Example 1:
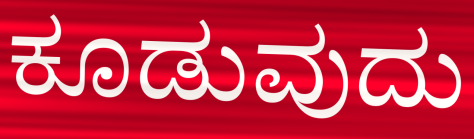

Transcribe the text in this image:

ಕೂಡುವುದು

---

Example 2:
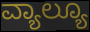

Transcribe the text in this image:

ವ್ಯಾಲ್ಯೂ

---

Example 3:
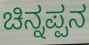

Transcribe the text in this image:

ಚಿನ್ನಪ್ಪನ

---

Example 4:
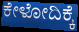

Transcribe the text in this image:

ಕೇಳೋದಿಕ್ಕೆ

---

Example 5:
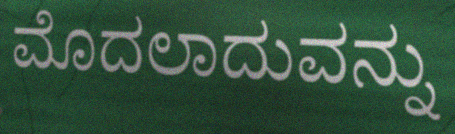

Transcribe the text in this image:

ಮೊದಲಾದುವನ್ನು